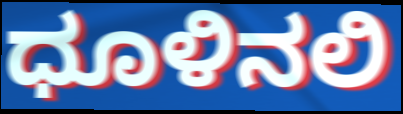
ಧೂಳಿನಲಿ